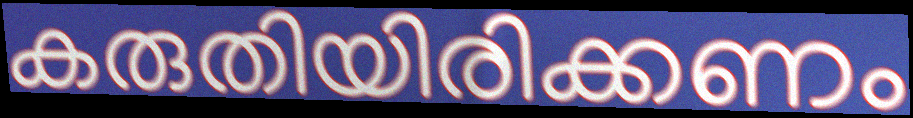
കരുതിയിരിക്കണം